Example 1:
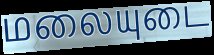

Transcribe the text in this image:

மலையுடை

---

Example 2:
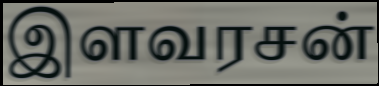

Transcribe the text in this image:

இளவரசன்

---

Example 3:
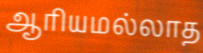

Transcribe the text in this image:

ஆரியமல்லாத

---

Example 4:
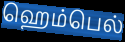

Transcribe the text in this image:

ஹெம்பெல்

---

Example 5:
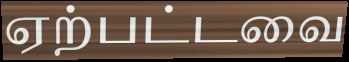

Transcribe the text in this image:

ஏற்பட்டவை